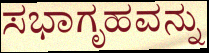
ಸಭಾಗೃಹವನ್ನು